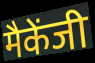
मैकेंजी